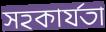
সহকাৰ্যতা